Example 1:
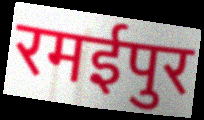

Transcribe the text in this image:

रमईपुर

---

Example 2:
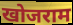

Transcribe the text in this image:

खोजराम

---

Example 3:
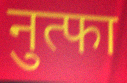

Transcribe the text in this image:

नुत्फा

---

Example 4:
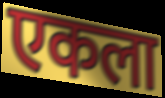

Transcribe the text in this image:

एकला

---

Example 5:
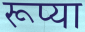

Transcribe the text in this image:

रूप्या